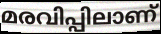
മരവിപ്പിലാണ്